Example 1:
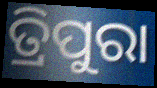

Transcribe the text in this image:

ତ୍ରିପୁରା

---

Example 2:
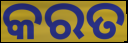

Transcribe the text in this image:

କରତ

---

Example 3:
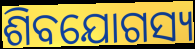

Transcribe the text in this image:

ଶିବଯୋଗସ୍ୟ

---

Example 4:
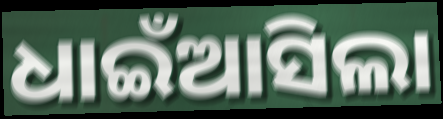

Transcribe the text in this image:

ଧାଇଁଆସିଲା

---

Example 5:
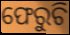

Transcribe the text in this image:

ଫେରୁଚି